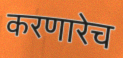
करणारेच